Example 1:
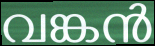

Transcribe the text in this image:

വങ്കൻ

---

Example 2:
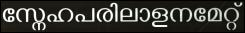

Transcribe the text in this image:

സ്നേഹപരിലാളനമേറ്റ്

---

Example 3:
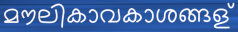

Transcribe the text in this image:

മൗലികാവകാശങ്ങള്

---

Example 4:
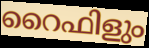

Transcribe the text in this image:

റൈഫിളും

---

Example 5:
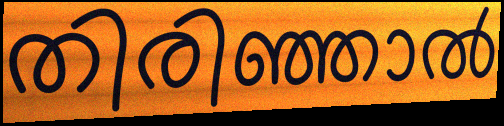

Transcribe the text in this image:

തിരിഞ്ഞാൽ